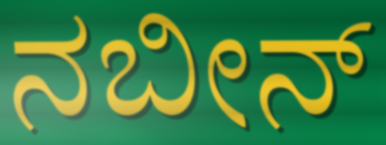
ನಬೀನ್